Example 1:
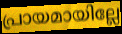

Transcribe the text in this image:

പ്രായമായില്ലേ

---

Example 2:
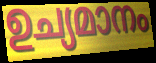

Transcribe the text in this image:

ഉച്യമാനം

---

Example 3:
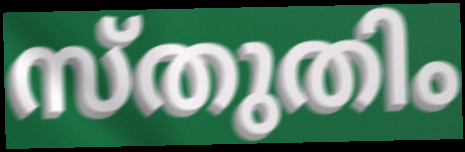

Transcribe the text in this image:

സ്തുതിം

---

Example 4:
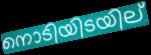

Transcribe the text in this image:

നൊടിയിടയില്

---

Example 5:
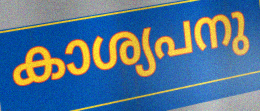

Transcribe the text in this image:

കാശ്യപനു